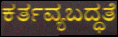
ಕರ್ತವ್ಯಬದ್ಧತೆ